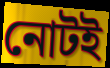
নোটই